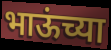
भाऊंच्या